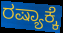
ರಷ್ಯಾಕ್ಕೆ